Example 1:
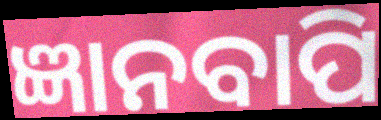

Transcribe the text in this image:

ଜ୍ଞାନବାପି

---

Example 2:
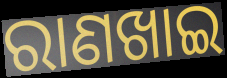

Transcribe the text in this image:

ରାଣଖାଇ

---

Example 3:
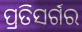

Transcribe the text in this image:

ପ୍ରତିସର୍ଗର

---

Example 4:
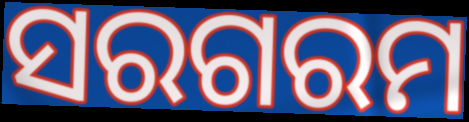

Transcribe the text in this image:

ସରଗରମ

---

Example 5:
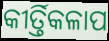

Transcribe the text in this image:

କୀର୍ତ୍ତିକଳାପ